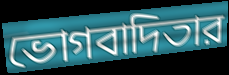
ভোগবাদিতার